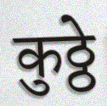
कुठ्ठे